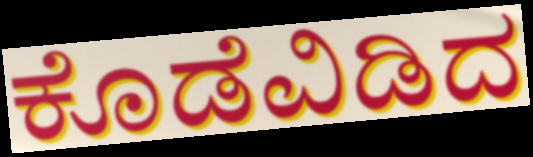
ಕೊಡೆವಿಡಿದ